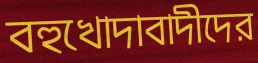
বহুখোদাবাদীদের